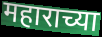
महाराच्या